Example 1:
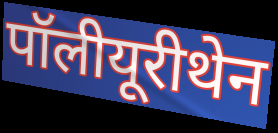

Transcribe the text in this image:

पॉलीयूरीथेन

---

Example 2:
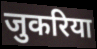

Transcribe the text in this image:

जुकरिया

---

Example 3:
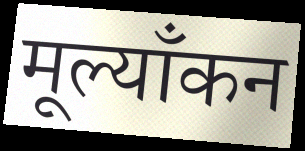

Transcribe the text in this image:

मूल्याँकन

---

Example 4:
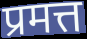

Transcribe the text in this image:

प्रमत्त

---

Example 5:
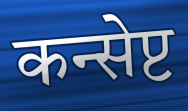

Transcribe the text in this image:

कन्सेप्ट